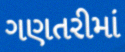
ગણતરીમાં